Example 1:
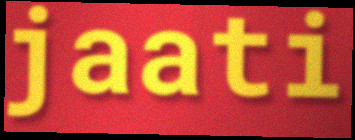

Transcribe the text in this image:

jaati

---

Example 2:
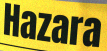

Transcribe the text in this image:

Hazara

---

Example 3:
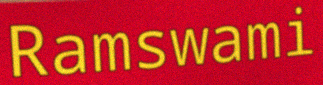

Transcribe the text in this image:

Ramswami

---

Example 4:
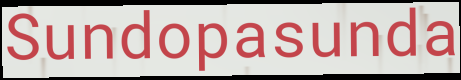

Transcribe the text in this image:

Sundopasunda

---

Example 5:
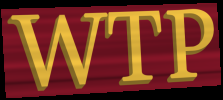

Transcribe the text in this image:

WTP